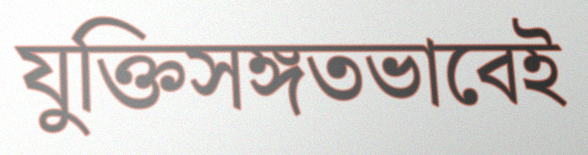
যুক্তিসঙ্গতভাবেই